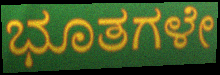
ಭೂತಗಳೇ